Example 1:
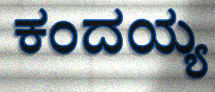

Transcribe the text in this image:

ಕಂದಯ್ಯ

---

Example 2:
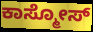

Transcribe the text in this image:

ಕಾಸ್ಮೋಸ್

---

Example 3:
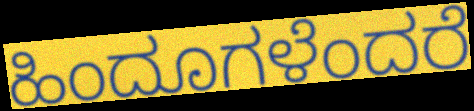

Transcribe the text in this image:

ಹಿಂದೂಗಳೆಂದರೆ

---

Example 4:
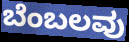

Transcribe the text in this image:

ಬೆಂಬಲವು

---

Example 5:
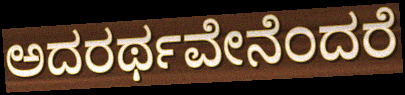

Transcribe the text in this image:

ಅದರರ್ಥವೇನೆಂದರೆ